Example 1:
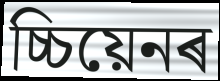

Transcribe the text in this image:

চ্চিয়েনৰ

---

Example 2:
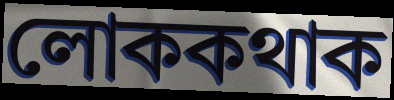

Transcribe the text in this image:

লোককথাক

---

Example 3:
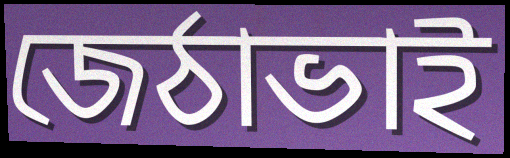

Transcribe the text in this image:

জেঠাভাই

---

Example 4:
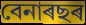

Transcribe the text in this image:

বেনাৰছৰ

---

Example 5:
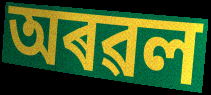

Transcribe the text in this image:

অৰৱল